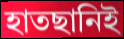
হাতছানিই